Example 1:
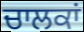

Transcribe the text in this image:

ਚਾਲਕਾਂ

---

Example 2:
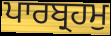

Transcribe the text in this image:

ਪਾਰਬ੍ਰਹਮੁ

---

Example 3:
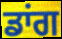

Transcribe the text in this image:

ਡਾਂਗ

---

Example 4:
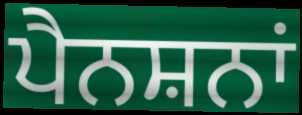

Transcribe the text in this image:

ਪੈਨਸ਼ਨਾਂ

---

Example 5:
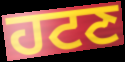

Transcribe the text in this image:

ਹਟਣ